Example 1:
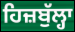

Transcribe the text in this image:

ਹਿਜ਼ਬੁੱਲ੍ਹਾ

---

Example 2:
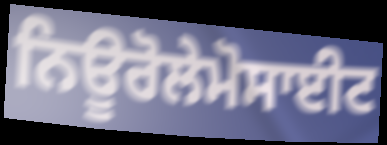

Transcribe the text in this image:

ਨਿਊਰੋਲੇਮੋਸਾਈਟ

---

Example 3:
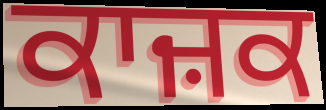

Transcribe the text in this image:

ਕਾਜ਼ਕ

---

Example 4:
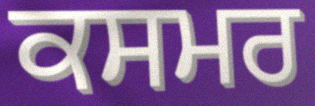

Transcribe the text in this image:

ਕਸਮਰ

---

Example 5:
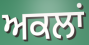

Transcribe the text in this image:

ਅਕਲਾਂ